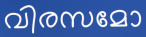
വിരസമോ